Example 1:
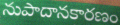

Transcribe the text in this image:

నుపాదానకారణం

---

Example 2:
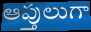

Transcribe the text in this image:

ఆప్తులుగా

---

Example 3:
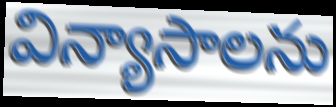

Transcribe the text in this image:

విన్యాసాలను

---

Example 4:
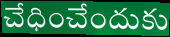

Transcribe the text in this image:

చేధించేందుకు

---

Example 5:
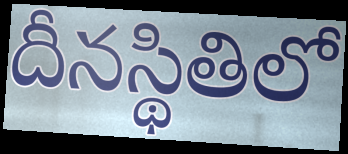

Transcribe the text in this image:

దీనస్థితిలో